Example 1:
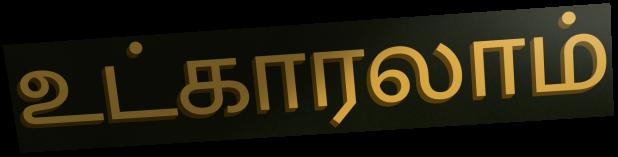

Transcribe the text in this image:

உட்காரலாம்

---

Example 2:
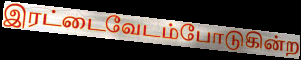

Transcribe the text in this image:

இரட்டைவேடம்போடுகின்ற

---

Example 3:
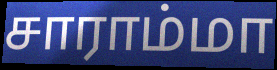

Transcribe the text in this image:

சாராம்மா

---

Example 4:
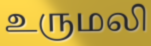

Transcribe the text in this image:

உருமலி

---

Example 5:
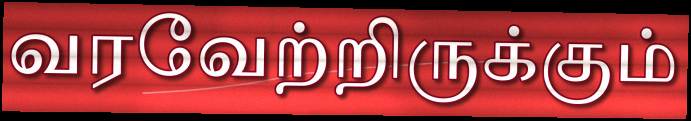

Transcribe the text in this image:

வரவேற்றிருக்கும்